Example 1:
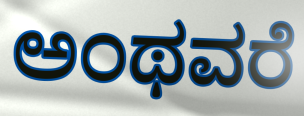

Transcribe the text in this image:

ಅಂಥವರೆ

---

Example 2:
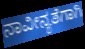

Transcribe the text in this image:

ನಾವೀನ್ಯತೆಗಾಗಿ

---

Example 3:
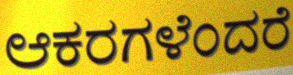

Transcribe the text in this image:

ಆಕರಗಳೆಂದರೆ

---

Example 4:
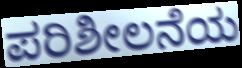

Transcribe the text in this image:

ಪರಿಶೀಲನೆಯ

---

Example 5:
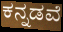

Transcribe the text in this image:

ಕನ್ನಡವೆ